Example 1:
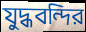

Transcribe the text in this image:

যুদ্ধবন্দির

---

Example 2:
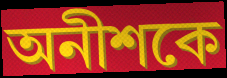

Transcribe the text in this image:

অনীশকে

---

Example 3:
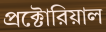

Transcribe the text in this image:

প্রক্টোরিয়াল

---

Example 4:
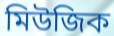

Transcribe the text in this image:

মিউজিক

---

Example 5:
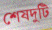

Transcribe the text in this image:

শেষদুটি